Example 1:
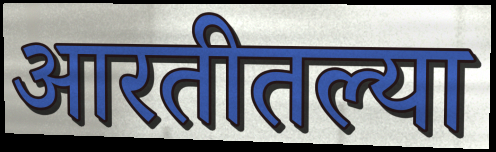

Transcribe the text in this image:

आरतीतल्या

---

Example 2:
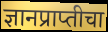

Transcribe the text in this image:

ज्ञानप्राप्तीचा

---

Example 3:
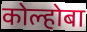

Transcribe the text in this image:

कोल्होबा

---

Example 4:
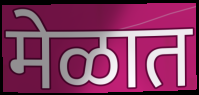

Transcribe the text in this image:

मेळात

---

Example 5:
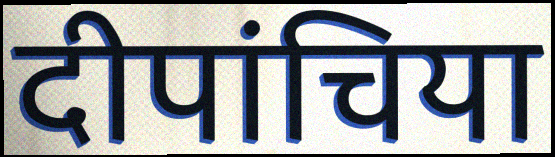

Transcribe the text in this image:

दीपांचिया